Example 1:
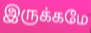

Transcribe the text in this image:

இருக்கமே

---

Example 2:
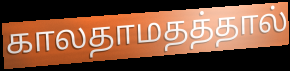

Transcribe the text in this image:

காலதாமதத்தால்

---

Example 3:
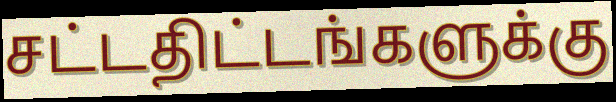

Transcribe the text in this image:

சட்டதிட்டங்களுக்கு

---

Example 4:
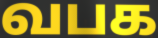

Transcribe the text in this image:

வபக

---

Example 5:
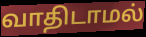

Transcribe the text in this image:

வாதிடாமல்